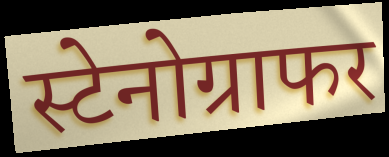
स्टेनोग्राफर